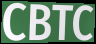
CBTC